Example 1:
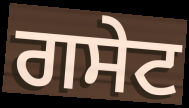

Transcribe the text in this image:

ਗਸੇਟ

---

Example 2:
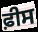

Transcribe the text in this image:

ਫ਼ੀਸ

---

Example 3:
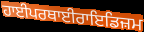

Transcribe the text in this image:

ਹਾਈਪਰਥਾਈਰਾਇਡਿਜ਼ਮ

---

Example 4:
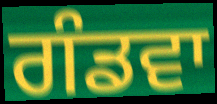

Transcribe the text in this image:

ਗੰਡਵਾ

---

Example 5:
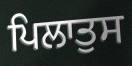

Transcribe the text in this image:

ਪਿਲਾਤੁਸ